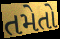
તમેતો